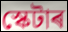
স্কেটাৰ